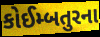
કોઈમ્બતુરના